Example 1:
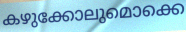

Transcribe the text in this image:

കഴുക്കോലുമൊക്കെ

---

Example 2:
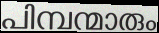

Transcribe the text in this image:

പിമ്പന്മാരും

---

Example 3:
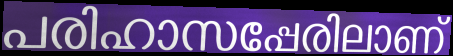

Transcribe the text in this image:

പരിഹാസപ്പേരിലാണ്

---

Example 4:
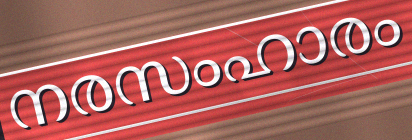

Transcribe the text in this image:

നരസംഹാരം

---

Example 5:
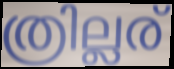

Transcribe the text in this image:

ത്രില്ലര്